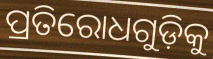
ପ୍ରତିରୋଧଗୁଡ଼ିକୁ